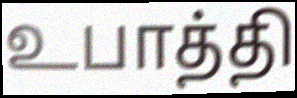
உபாத்தி